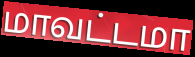
மாவட்டமா